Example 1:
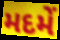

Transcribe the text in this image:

મદમેં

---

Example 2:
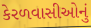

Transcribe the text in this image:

કેરળવાસીઓનું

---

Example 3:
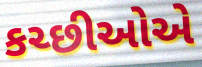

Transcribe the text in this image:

કચ્છીઓએ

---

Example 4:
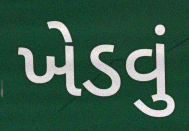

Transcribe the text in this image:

ખેડવું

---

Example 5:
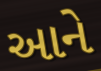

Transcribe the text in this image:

આને